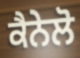
ਕੈਨੇਲੋ